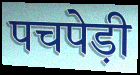
पचपेड़ी